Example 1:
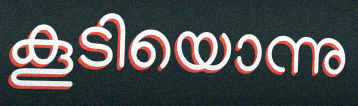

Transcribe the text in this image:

കൂടിയൊന്നു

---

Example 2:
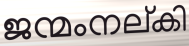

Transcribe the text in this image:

ജന്മംനല്കി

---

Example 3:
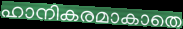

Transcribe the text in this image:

ഹാനികരമാകാതെ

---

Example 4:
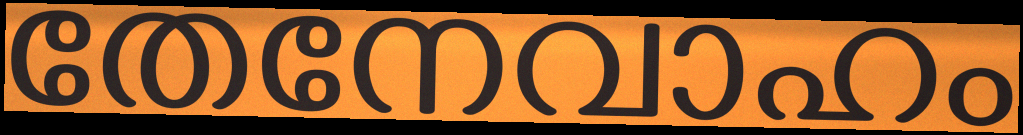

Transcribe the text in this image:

തേനേവാഹം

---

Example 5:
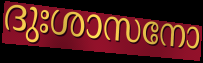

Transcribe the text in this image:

ദുഃശാസനോ